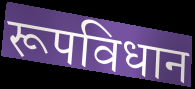
रूपविधान